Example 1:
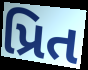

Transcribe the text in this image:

પ્રિત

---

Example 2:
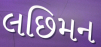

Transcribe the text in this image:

લછિમન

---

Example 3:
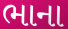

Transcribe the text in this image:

ભાના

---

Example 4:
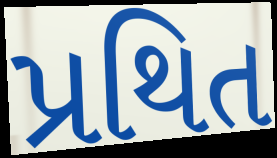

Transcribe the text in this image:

પ્રથિત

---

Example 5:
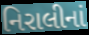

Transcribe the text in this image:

નિરાલીનાં